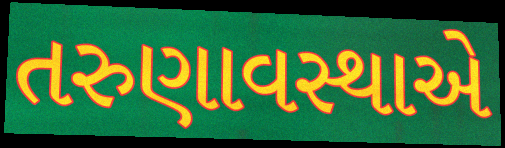
તરુણાવસ્થાએ